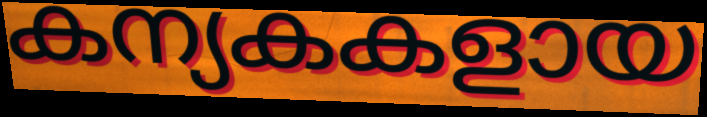
കന്യകകളായ